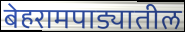
बेहरामपाड्यातील